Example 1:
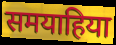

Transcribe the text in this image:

समयाहिया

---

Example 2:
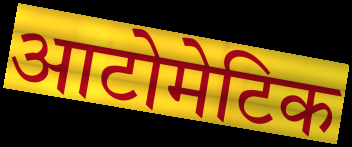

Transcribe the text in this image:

आटोमेटिक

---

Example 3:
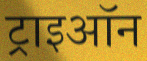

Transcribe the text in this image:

ट्राइऑन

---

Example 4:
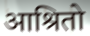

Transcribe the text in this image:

आश्रितो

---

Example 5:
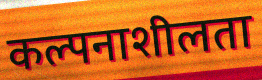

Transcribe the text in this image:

कल्पनाशीलता